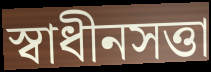
স্বাধীনসত্তা